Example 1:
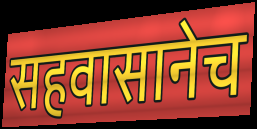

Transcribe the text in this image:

सहवासानेच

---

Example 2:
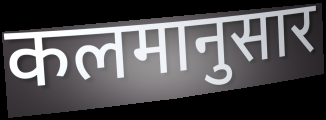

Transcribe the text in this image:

कलमानुसार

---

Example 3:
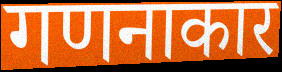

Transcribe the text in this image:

गणनाकार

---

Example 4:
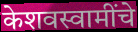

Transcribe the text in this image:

केशवस्वामींचे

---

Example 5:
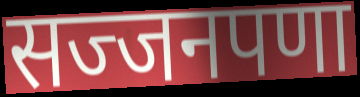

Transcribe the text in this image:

सज्जनपणा